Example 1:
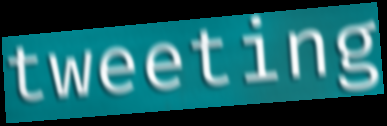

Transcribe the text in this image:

tweeting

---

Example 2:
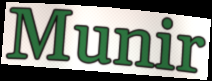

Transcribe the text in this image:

Munir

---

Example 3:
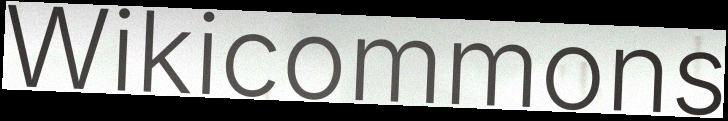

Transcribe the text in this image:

Wikicommons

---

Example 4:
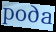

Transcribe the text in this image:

poda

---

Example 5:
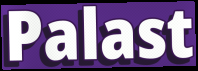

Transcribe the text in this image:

Palast